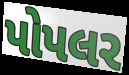
પોપલર